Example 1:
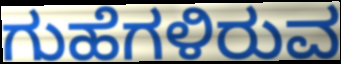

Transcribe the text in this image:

ಗುಹೆಗಳಿರುವ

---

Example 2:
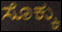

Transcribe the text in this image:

ಸೊಕ್ಕು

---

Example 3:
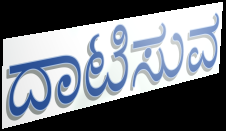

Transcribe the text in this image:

ದಾಟಿಸುವ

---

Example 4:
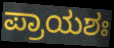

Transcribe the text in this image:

ಪ್ರಾಯಶಃ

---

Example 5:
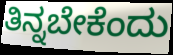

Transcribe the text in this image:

ತಿನ್ನಬೇಕೆಂದು